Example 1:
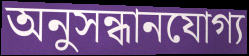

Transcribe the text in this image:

অনুসন্ধানযোগ্য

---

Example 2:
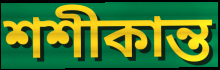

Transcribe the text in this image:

শশীকান্ত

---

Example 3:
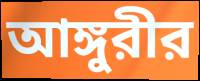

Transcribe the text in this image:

আঙ্গুরীর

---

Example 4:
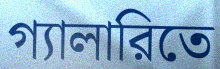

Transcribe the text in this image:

গ্যালারিতে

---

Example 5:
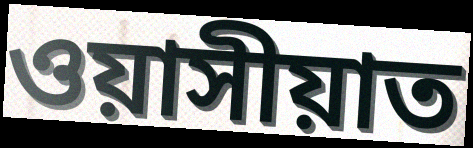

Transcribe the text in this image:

ওয়াসীয়াত